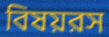
বিষয়রস